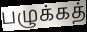
பழுக்கத்